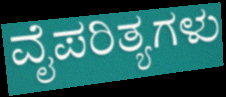
ವೈಪರಿತ್ಯಗಳು